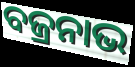
ବଜ୍ରନାଭ